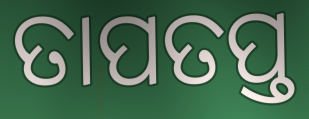
ତାପତପ୍ତ